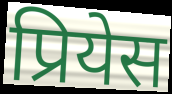
प्रियेस